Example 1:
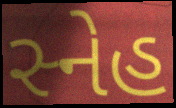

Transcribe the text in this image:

સ્નેહ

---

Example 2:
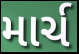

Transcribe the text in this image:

માર્ચ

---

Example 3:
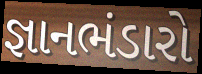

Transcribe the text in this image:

જ્ઞાનભંડારો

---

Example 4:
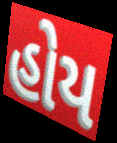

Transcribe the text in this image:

હોય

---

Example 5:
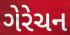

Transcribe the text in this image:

ગેરેચન